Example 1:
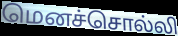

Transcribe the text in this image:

மெனச்சொல்லி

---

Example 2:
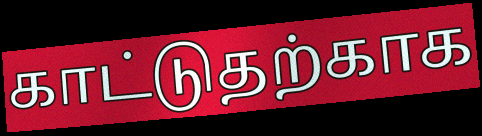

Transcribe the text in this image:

காட்டுதற்காக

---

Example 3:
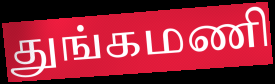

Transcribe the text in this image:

துங்கமணி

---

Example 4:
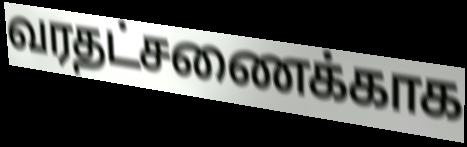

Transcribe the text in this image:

வரதட்சணைக்காக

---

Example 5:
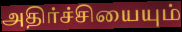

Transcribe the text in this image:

அதிர்ச்சியையும்